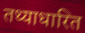
तथ्याधारित